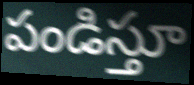
పండిస్తూ